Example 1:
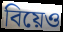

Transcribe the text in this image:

বিয়েও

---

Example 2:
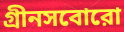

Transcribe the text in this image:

গ্রীনসবোরো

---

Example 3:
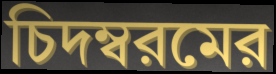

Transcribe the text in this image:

চিদম্বরমের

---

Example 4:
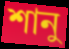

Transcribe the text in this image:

শানু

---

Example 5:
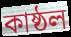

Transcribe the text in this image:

কাষ্ঠল